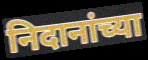
निदानांच्या